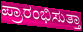
ಪ್ರಾರಂಭಿಸುತ್ತಾ